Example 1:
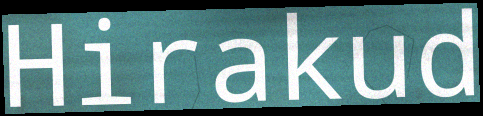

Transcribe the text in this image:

Hirakud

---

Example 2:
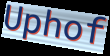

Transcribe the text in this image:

Uphof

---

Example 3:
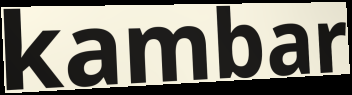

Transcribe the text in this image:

kambar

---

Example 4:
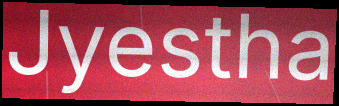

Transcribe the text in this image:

Jyestha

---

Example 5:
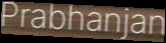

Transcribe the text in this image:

Prabhanjan